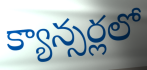
క్యాన్సర్లలో